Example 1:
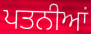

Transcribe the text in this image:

ਪਤਨੀਆਂ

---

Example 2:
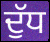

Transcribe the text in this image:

ਦੁੱਧ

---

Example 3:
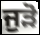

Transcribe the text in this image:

ਜੁੜੋ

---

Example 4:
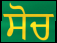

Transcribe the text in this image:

ਸੋਚ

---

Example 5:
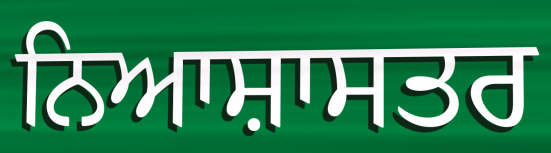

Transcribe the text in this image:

ਨਿਆਸ਼ਾਸਤਰ